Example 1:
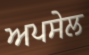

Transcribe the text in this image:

ਅਪਸੇਲ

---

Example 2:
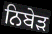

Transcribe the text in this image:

ਨਿਬੇੜ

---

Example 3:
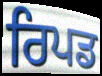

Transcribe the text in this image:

ਰਿਪਡ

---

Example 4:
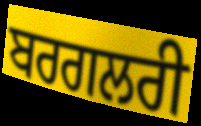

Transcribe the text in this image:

ਬਰਗਲਰੀ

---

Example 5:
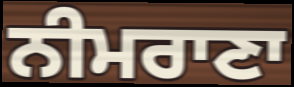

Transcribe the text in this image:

ਨੀਮਰਾਣਾ